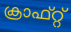
ക്രാഫ്റ്റ്